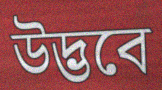
উদ্ভবে